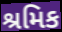
શ્રમિક